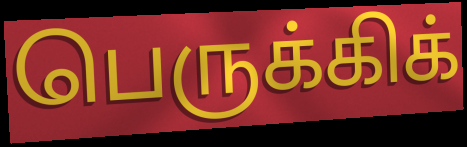
பெருக்கிக்